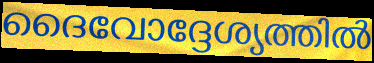
ദൈവോദ്ദേശ്യത്തിൽ